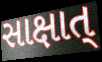
સાક્ષાત્